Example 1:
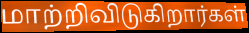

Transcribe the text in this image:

மாற்றிவிடுகிறார்கள்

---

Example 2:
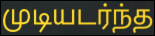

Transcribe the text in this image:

முடியடர்ந்த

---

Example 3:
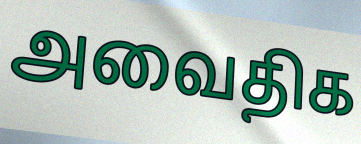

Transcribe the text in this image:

அவைதிக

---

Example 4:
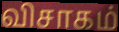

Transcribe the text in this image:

விசாகம்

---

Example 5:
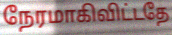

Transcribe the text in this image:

நேரமாகிவிட்டதே